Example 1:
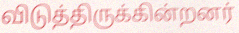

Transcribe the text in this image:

விடுத்திருக்கின்றனர்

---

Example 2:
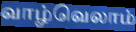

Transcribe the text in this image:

வாழ்வெலாம்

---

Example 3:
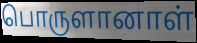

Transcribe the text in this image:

பொருளானாள்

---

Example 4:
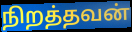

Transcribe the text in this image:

நிறத்தவன்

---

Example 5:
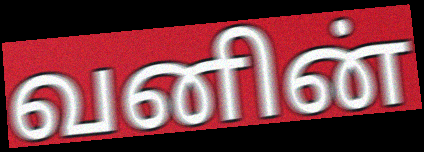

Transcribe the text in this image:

வனின்